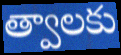
త్వాలకు